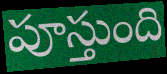
పూస్తుంది